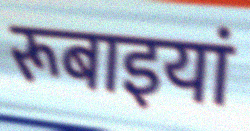
रूबाइयां